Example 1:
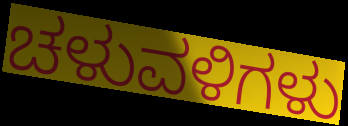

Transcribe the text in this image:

ಚಳುವಳಿಗಳು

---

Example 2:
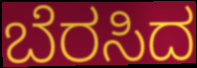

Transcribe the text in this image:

ಬೆರಸಿದ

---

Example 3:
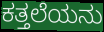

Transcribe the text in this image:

ಕತ್ತಲೆಯನು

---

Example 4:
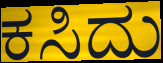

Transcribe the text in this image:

ಕಸಿದು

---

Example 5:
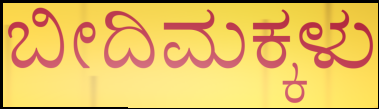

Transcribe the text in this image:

ಬೀದಿಮಕ್ಕಳು